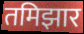
तमिझार